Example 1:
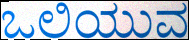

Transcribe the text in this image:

ಒಲಿಯುವ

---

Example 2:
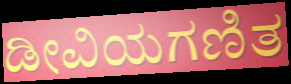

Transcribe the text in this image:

ಡೀವಿಯಗಣಿತ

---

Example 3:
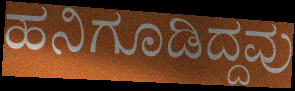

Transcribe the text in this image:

ಹನಿಗೂಡಿದ್ದವು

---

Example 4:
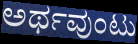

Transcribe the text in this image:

ಅರ್ಥವುಂಟು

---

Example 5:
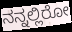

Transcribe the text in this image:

ನನ್ನಲ್ಲಿರೋ